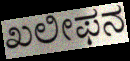
ಖಲೀಫನ